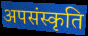
अपसंस्कृति